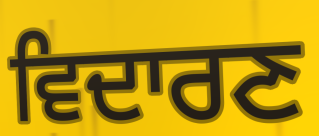
ਵਿਦਾਰਣ